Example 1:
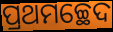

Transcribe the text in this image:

ପ୍ରଥମଚ୍ଛେଦ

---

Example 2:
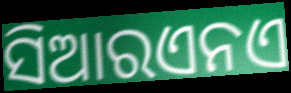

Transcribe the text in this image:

ସିଆରଏନଏ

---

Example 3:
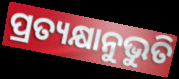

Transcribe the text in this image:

ପ୍ରତ୍ୟକ୍ଷାନୁଭୁତି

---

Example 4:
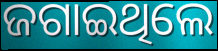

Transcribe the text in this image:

ଜଗାଇଥିଲେ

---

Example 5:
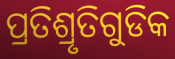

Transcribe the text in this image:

ପ୍ରତିଶ୍ରୃତିଗୁଡିକ